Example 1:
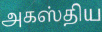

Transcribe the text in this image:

அகஸ்திய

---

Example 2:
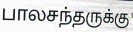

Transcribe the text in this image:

பாலசந்தருக்கு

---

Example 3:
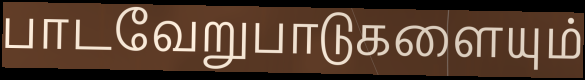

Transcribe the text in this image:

பாடவேறுபாடுகளையும்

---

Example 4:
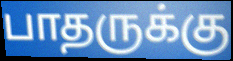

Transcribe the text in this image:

பாதருக்கு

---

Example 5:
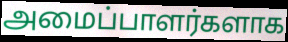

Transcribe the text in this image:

அமைப்பாளர்களாக